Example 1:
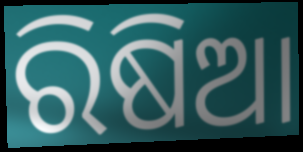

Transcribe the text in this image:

ରିଷିଆ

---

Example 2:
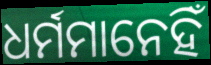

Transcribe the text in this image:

ଧର୍ମମାନେହିଁ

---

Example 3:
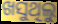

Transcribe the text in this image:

ଖସୁଥିଲୁ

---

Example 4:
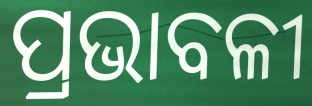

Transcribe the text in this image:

ପ୍ରଭାବଳୀ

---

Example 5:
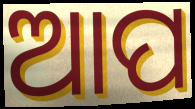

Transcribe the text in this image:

ଆପ